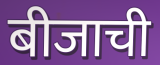
बीजाची